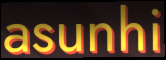
asunhi